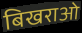
बिखराओ